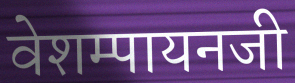
वेशम्पायनजी